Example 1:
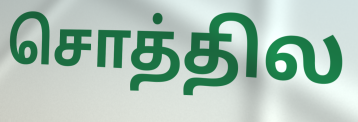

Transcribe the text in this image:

சொத்தில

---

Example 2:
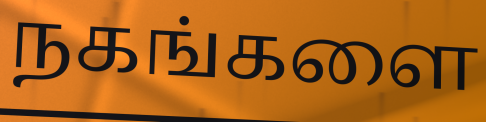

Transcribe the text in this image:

நகங்களை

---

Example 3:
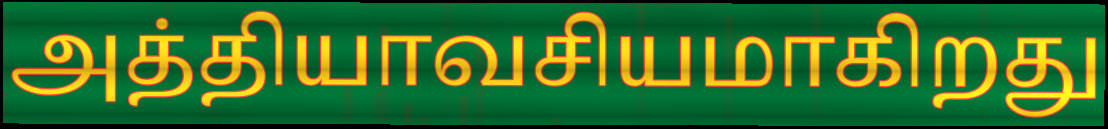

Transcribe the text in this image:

அத்தியாவசியமாகிறது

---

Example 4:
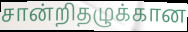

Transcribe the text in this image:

சான்றிதழுக்கான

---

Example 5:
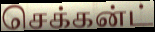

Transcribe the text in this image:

செக்கன்ட்